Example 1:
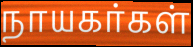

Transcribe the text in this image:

நாயகர்கள்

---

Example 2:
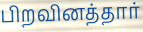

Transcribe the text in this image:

பிறவினத்தார்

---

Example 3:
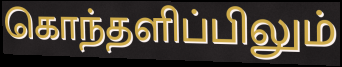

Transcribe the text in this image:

கொந்தளிப்பிலும்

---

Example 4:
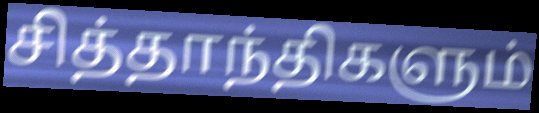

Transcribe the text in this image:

சித்தாந்திகளும்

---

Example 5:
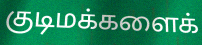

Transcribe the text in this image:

குடிமக்களைக்